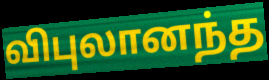
விபுலானந்த